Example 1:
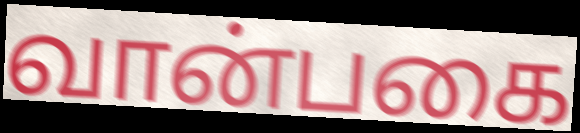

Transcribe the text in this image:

வான்பகை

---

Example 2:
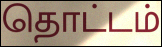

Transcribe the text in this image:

தொட்டம்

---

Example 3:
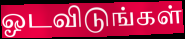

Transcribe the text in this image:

ஓடவிடுங்கள்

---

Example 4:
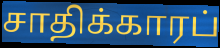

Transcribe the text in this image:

சாதிக்காரப்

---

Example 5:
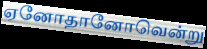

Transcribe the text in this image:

ஏனோதானோவென்று